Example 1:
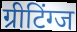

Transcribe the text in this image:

ग्रीटिंग्ज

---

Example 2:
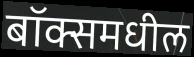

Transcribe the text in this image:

बॉक्समधील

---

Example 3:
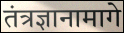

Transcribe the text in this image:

तंत्रज्ञानामागे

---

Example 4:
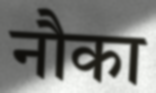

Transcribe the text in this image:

नौका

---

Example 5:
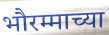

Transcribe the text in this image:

भौरम्माच्या